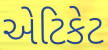
એટિકેટ